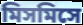
মিসমিসে